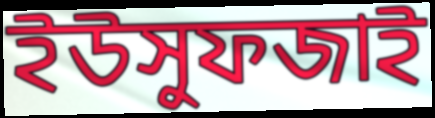
ইউসুফজাই